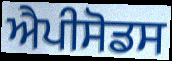
ਐਪੀਸੋਡਸ